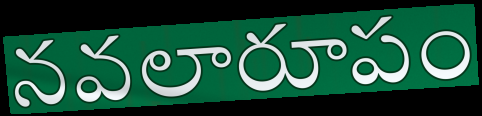
నవలారూపం